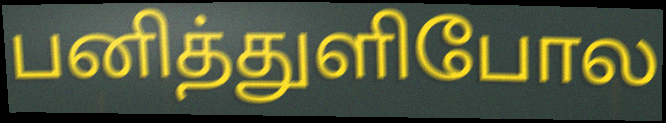
பனித்துளிபோல